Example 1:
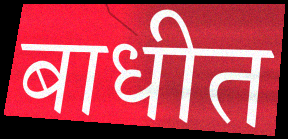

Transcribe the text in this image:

बाधीत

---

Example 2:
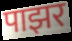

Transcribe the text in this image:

पाझर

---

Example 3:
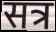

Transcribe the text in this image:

सत्र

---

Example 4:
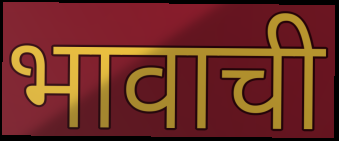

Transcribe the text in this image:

भावाची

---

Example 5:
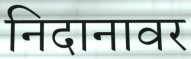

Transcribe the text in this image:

निदानावर